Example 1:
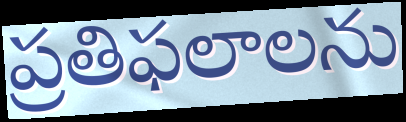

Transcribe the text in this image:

ప్రతిఫలాలను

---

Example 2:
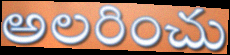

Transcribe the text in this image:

అలరించు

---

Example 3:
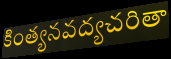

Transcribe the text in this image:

కింత్యనవద్యచరితా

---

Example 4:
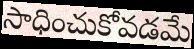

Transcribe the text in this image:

సాధించుకోవడమే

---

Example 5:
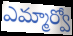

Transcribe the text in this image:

ఎమ్మార్వో